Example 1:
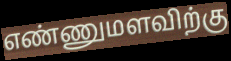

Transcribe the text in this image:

எண்ணுமளவிற்கு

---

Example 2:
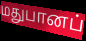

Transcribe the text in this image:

மதுபானப்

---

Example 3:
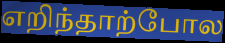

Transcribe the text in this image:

எறிந்தாற்போல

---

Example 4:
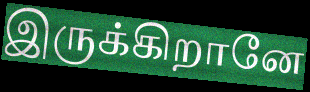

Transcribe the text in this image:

இருக்கிறானே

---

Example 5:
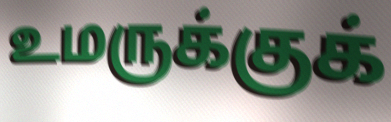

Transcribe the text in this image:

உமருக்குக்